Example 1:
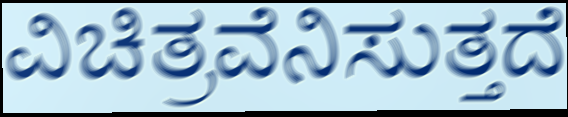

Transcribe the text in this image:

ವಿಚಿತ್ರವೆನಿಸುತ್ತದೆ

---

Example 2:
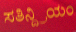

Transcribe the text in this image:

ಸತಿನ್ದ್ರಿಯಂ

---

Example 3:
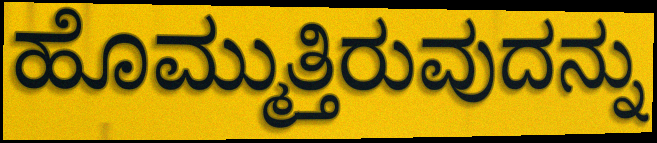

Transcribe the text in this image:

ಹೊಮ್ಮುತ್ತಿರುವುದನ್ನು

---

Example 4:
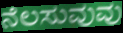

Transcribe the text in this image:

ನೆಲಸುವುವು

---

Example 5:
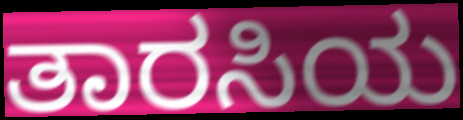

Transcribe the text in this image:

ತಾರಸಿಯ